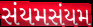
સંયમસંયમ